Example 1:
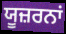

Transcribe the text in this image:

ਯੂਜ਼ਰਨਾਂ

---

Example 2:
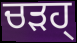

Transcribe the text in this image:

ਚੜਹ੍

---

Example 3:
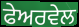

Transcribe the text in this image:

ਫੇਅਰਵੇਲ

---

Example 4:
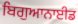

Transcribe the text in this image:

ਬਿਗੁਆਨਾਈਡ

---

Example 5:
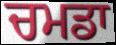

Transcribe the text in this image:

ਚਮਡਾ